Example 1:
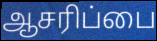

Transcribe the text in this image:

ஆசரிப்பை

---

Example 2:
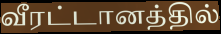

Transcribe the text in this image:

வீரட்டானத்தில்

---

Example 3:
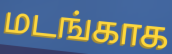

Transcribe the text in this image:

மடங்காக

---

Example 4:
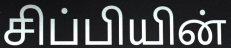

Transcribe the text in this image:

சிப்பியின்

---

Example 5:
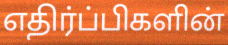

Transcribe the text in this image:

எதிர்ப்பிகளின்